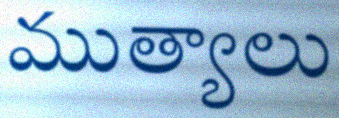
ముత్యాలు